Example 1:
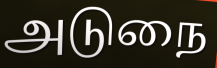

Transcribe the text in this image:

அடுநை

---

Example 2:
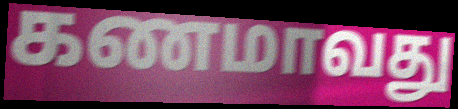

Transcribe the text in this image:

கணமாவது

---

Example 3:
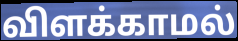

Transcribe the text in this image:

விளக்காமல்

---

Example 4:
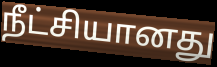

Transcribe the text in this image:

நீட்சியானது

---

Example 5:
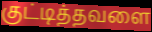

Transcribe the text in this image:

குட்டித்தவளை